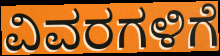
ವಿವರಗಳಿಗೆ